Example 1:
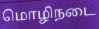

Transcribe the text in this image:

மொழிநடை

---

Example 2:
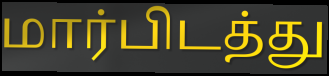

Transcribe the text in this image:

மார்பிடத்து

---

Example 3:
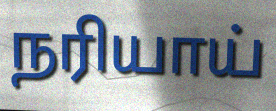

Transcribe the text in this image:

நரியாய்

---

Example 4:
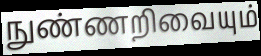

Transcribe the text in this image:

நுண்ணறிவையும்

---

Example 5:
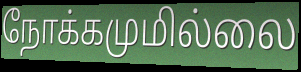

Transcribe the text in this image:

நோக்கமுமில்லை